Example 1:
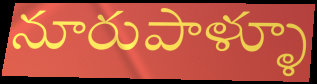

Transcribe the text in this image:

నూరుపాళ్ళూ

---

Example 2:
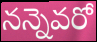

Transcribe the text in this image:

నన్నెవరో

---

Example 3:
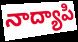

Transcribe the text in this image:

నాద్యాపి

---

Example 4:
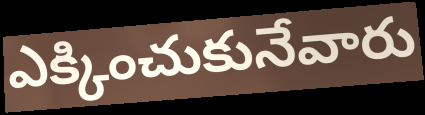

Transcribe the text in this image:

ఎక్కించుకునేవారు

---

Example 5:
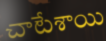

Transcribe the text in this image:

చాటేశాయి